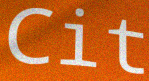
Cit